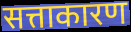
सत्ताकारण